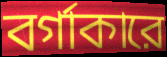
বর্গাকারে